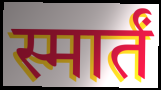
स्मार्तं